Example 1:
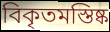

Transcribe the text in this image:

বিকৃতমস্তিষ্ক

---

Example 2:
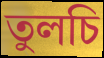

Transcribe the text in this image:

তুলচি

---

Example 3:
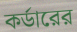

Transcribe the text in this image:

কর্ডারের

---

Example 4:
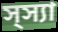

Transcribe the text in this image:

স্স্যা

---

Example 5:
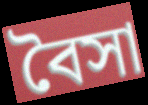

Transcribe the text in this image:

বৈসা